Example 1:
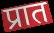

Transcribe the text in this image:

प्रात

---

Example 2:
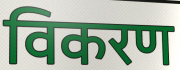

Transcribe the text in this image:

विकरण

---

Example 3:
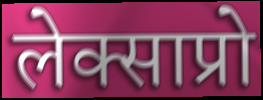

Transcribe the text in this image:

लेक्साप्रो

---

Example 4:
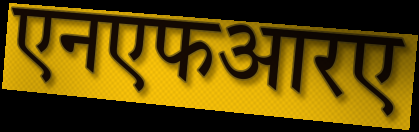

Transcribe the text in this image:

एनएफआरए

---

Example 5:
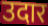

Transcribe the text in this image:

उदार